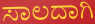
ಸಾಲದಾಗಿ